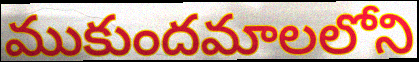
ముకుందమాలలోని